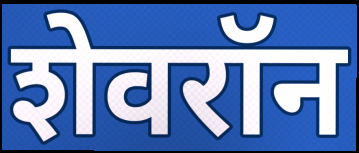
शेवरॉन